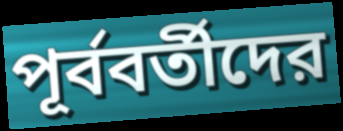
পূর্ববর্তীদের